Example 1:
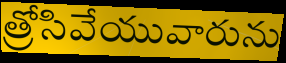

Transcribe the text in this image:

త్రోసివేయువారును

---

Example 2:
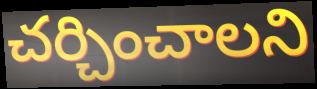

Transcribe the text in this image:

చర్చించాలని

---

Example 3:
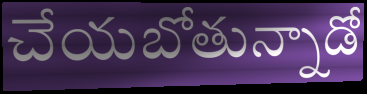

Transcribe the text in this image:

చేయబోతున్నాడో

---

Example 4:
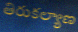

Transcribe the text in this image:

తిరుకల్యాణ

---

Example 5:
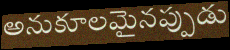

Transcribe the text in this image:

అనుకూలమైనప్పుడు